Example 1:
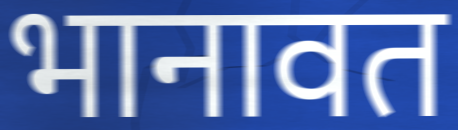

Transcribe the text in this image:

भानावत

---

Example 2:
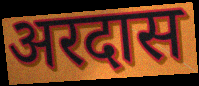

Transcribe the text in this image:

अरदास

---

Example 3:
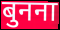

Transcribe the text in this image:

बुनना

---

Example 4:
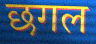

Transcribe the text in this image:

छगल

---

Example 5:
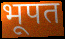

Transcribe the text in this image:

भूपत